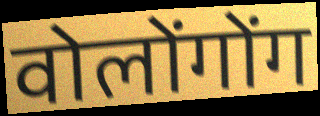
वोलोंगोंग